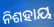
ନିଶହାୟ